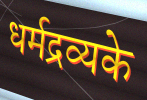
धर्मद्रव्यके